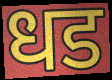
धड